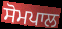
ਸੋਮਪਾਲ